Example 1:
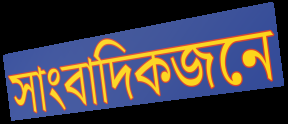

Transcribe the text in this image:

সাংবাদিকজনে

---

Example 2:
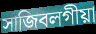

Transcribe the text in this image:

সাজিবলগীয়া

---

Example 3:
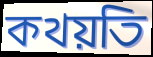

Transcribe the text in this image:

কথয়তি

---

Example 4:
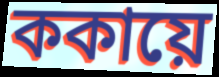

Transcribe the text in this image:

ককায়ে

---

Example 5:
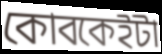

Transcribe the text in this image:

কোবকেইটা